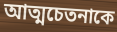
আত্মচেতনাকে